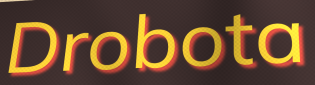
Drobota